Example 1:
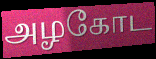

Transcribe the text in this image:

அழகோட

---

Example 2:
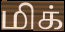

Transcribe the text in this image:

மிக்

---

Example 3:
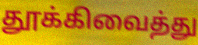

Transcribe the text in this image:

தூக்கிவைத்து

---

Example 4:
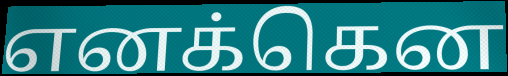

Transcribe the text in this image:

எனக்கென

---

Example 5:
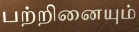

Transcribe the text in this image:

பற்றினையும்